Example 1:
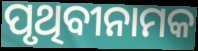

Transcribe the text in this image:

ପୃଥିବୀନାମକ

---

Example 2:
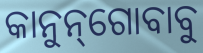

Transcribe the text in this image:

କାନୁନ୍‌ଗୋବାବୁ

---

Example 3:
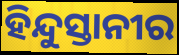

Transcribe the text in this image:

ହିନ୍ଦୁସ୍ତାନୀର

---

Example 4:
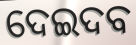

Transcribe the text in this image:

ଦେଇଦବ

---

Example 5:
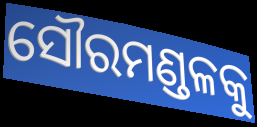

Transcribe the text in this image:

ସୌରମଣ୍ଡଳକୁ